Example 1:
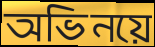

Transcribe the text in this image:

অভিনয়ে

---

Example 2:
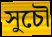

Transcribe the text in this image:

সুচৌ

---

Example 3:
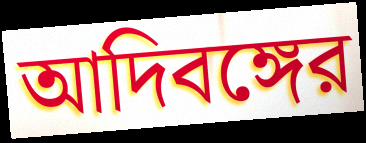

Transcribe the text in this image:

আদিবঙ্গের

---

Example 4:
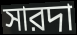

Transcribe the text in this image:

সারদা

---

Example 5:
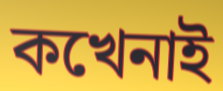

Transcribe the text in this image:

কখেনাই